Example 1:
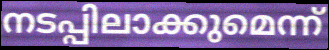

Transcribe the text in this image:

നടപ്പിലാക്കുമെന്ന്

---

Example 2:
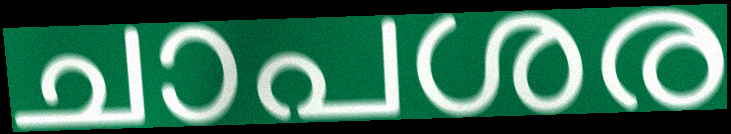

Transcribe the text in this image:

ചാപശര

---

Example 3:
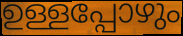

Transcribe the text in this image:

ഉള്ളപ്പോഴും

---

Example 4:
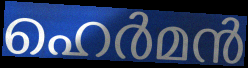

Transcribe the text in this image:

ഹെർമൻ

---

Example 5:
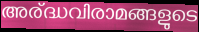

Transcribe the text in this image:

അര്ദ്ധവിരാമങ്ങളുടെ